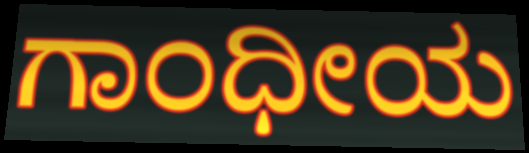
ಗಾಂಧೀಯ